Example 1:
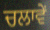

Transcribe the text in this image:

ਚਲਾਵੇਂ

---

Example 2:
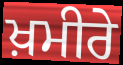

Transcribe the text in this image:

ਖ਼ਮੀਰੇ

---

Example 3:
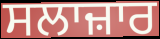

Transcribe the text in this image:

ਸਲਾਜ਼ਾਰ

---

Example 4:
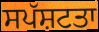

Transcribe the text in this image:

ਸਪੱਸ਼ਟਤਾ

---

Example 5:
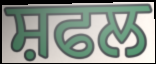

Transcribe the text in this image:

ਸ਼ਫਲ